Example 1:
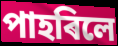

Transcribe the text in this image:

পাহৰিলে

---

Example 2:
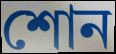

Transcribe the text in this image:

শোন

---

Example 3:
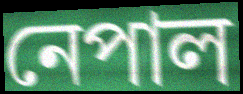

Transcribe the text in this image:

নেপাল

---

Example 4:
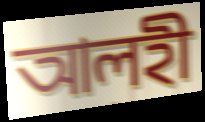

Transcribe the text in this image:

আলহী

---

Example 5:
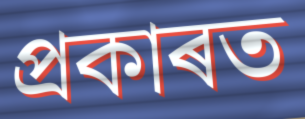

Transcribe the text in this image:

প্ৰকাৰত